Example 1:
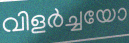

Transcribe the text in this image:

വിളർച്ചയോ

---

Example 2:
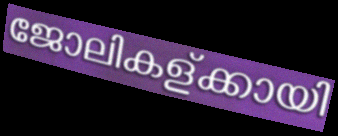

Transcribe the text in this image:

ജോലികള്ക്കായി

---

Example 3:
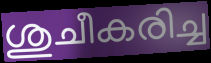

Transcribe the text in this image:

ശുചീകരിച്ച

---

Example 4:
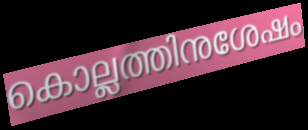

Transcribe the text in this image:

കൊല്ലത്തിനുശേഷം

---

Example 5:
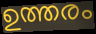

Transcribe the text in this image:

ഉത്തരം